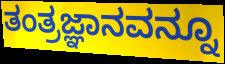
ತಂತ್ರಜ್ಞಾನವನ್ನೂ